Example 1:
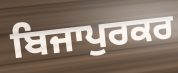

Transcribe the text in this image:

ਬਿਜਾਪੁਰਕਰ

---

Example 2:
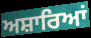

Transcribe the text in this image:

ਅਸ਼ਾਰਿਆਂ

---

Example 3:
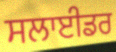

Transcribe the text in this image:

ਸਲਾਈਡਰ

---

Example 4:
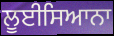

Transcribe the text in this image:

ਲੂਈਸਿਆਨਾ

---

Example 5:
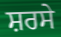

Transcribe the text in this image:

ਸ਼ਰਸੇ